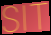
SIT